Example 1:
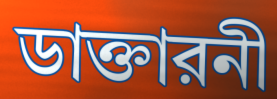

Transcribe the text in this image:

ডাক্তারনী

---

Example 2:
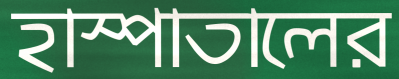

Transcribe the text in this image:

হাস্পাতালের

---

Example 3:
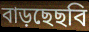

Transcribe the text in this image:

বাড়ছেছবি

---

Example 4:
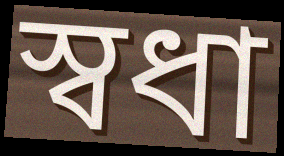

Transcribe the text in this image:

স্বধা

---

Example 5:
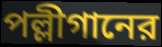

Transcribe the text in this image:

পল্লীগানের